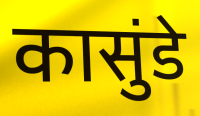
कासुंडे